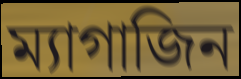
ম্যাগাজিন